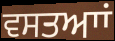
ਵਸਤਆਾਂ